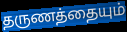
தருணத்தையும்